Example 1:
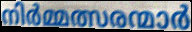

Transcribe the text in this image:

നിർമ്മത്സരന്മാർ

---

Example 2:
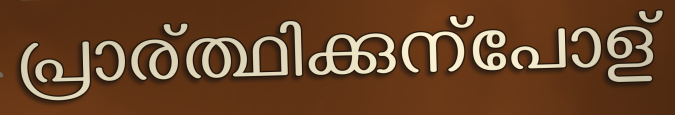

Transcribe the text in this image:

പ്രാര്ത്ഥിക്കുന്പോള്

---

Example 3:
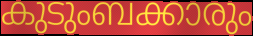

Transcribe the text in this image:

കുടുംബക്കാരും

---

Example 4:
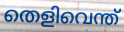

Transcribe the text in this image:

തെളിവെന്ത്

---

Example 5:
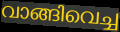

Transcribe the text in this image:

വാങ്ങിവെച്ച